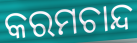
କରମଚାନ୍ଦ